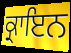
ਕ੍ਰਾਇਨ